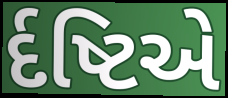
ર્દષ્ટિએ